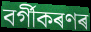
বৰ্গীকৰণৰ